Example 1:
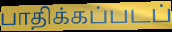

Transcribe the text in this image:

பாதிக்கப்படப்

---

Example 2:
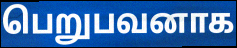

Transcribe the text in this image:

பெறுபவனாக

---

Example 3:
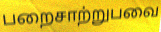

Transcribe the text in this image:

பறைசாற்றுபவை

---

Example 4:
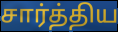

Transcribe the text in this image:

சார்த்திய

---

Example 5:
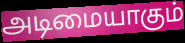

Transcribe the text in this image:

அடிமையாகும்